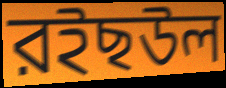
রইছউল